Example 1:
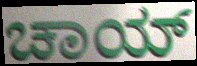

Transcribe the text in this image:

ಚಾಯ್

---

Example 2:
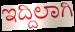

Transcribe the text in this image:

ಇದ್ದಿಲಾಗಿ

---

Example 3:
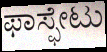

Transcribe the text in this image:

ಫಾಸ್ಫೇಟು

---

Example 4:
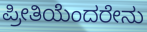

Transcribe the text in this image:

ಪ್ರೀತಿಯೆಂದರೇನು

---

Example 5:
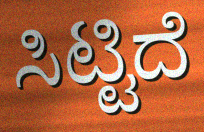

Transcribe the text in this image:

ಸಿಟ್ಟಿದೆ